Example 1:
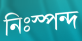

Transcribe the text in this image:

নিঃস্পন্দ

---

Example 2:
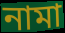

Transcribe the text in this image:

নামা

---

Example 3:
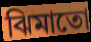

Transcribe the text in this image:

ঝিমাতো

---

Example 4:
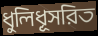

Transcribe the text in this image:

ধুলিধূসরিত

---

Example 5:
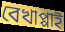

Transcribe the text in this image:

বেখাপ্পাই